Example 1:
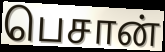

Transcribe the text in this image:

பெசான்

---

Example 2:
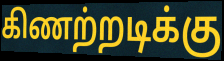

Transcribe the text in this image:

கிணற்றடிக்கு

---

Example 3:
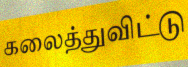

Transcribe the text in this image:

கலைத்துவிட்டு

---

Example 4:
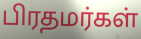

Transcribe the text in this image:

பிரதமர்கள்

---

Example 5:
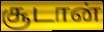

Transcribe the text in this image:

சூடான்